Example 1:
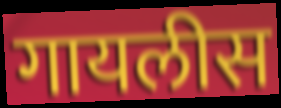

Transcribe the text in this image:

गायलीस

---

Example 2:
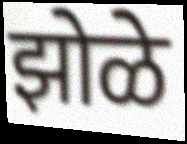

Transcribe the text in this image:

झोळे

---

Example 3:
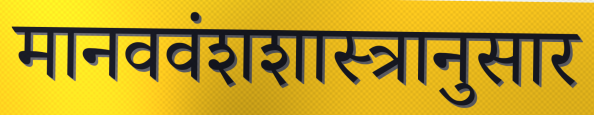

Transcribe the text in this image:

मानववंशशास्त्रानुसार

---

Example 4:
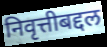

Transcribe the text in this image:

निवृत्तीबद्दल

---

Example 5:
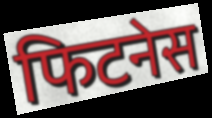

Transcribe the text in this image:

फिटनेस